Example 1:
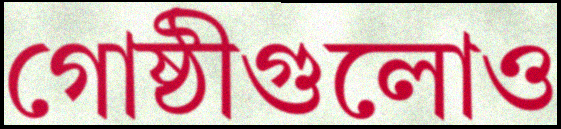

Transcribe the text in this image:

গোষ্ঠীগুলোও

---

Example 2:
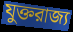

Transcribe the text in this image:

যুক্তরাজ্য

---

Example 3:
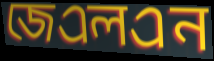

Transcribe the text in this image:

জেএলএন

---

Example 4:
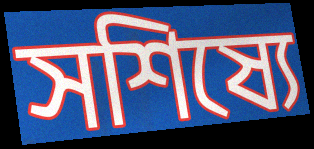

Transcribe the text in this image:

সশিষ্যে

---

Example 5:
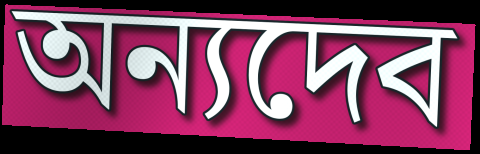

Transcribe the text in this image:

অন্যদেব